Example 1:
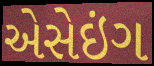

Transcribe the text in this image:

એસેઇંગ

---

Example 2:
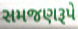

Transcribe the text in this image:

સમજણરૂપે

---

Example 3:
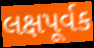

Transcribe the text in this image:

લક્ષપૂર્વક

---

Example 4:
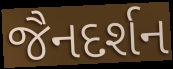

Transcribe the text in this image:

જૈનદર્શન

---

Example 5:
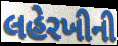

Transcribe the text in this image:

લહેરખીની